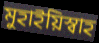
মুহাইয়িস্বাহ